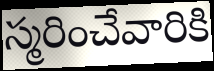
స్మరించేవారికి